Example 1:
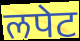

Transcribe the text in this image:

लपेट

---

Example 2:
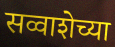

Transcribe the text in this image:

सव्वाशेच्या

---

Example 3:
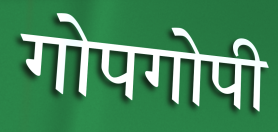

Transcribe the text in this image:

गोपगोपी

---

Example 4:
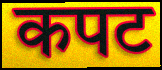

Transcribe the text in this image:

कपट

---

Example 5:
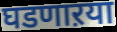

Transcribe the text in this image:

घडणाऱया